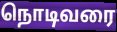
நொடிவரை